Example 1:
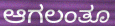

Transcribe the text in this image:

ಆಗಲಂತೂ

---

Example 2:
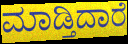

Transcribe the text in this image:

ಮಾಡ್ತಿದಾರೆ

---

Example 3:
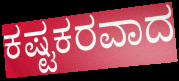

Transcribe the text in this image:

ಕಷ್ಟಕರವಾದ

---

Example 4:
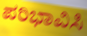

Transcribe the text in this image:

ಪರಿಭಾವಿಸಿ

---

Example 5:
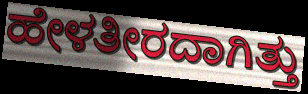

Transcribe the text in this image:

ಹೇಳತೀರದಾಗಿತ್ತು